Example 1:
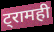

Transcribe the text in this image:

ट्रामही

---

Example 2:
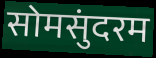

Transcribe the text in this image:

सोमसुंदरम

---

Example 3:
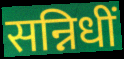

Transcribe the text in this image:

सन्निधीं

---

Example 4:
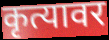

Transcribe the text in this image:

कृत्यावर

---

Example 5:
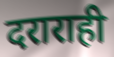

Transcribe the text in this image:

दराराही